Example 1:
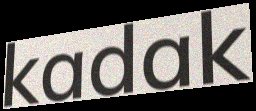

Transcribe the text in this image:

kadak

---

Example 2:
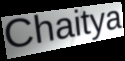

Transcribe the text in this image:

Chaitya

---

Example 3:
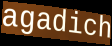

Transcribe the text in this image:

agadich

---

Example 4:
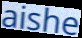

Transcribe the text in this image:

aishe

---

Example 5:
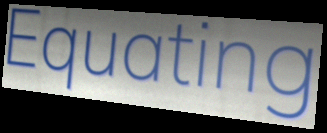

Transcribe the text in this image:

Equating